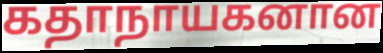
கதாநாயகனான